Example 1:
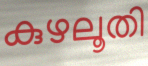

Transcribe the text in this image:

കുഴലൂതി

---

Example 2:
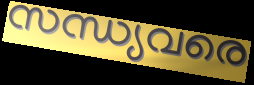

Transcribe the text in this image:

സന്ധ്യവരെ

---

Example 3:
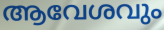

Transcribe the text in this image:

ആവേശവും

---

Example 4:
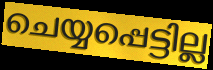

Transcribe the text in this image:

ചെയ്യപ്പെട്ടില്ല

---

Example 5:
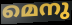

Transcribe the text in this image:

മെനു